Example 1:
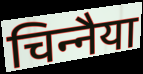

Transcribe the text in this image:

चिन्नैया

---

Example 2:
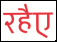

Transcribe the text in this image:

रहैए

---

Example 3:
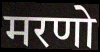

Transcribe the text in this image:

मरणो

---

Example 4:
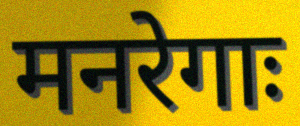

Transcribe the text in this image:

मनरेगाः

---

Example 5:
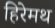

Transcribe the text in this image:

हिरेमथ